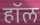
हॉल